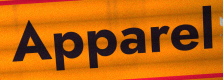
Apparel